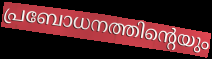
പ്രബോധനത്തിന്റെയും